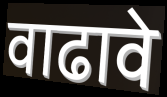
वाढावे